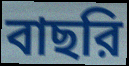
বাছরি